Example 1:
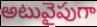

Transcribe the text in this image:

అటువైపుగా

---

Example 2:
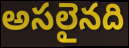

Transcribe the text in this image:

అసలైనది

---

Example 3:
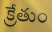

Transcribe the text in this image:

క్రేతుం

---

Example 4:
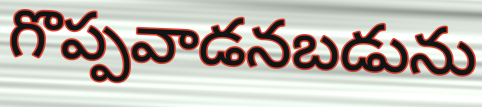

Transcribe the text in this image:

గొప్పవాడనబడును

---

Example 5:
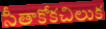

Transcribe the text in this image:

సీతాకోకచిలుక